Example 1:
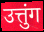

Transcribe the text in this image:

उत्तुंग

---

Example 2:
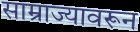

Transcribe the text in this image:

साम्राज्यावरून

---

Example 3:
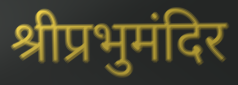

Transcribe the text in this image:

श्रीप्रभुमंदिर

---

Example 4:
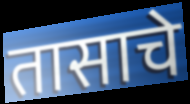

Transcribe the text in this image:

तासाचे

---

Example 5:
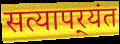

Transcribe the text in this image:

सत्यापर्यंत